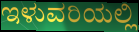
ಇಳುವರಿಯಲ್ಲಿ